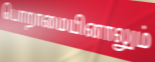
பொறாமையினாலும்